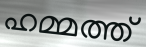
ഹമ്മത്ത്